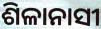
ଶିଳାନାସୀ